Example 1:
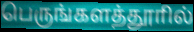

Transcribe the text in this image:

பெருங்களத்தூரில்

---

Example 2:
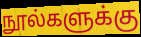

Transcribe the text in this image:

நூல்களுக்கு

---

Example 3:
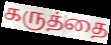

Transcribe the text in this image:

கருத்தை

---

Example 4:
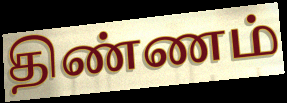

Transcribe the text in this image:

திண்ணம்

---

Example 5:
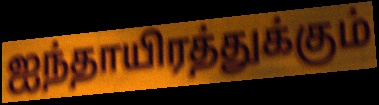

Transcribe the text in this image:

ஐந்தாயிரத்துக்கும்